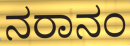
ನರಾನಂ